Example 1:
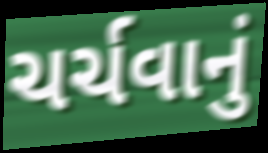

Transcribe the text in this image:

ચર્ચવાનું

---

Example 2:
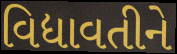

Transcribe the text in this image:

વિદ્યાવતીને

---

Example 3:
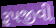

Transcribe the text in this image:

રૂપજીવી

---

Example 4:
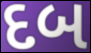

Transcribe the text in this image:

દબ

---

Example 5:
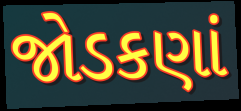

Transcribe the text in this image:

જોડકણાં